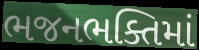
ભજનભક્તિમાં